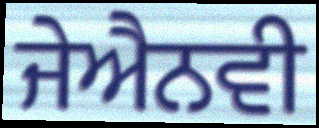
ਜੇਐਨਵੀ